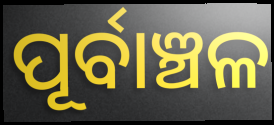
ପୂର୍ବାଞ୍ଚଳ